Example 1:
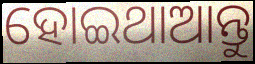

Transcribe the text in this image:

ହୋଇଥାଆନ୍ତୁ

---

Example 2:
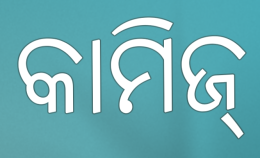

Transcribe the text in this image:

କାମିଜ୍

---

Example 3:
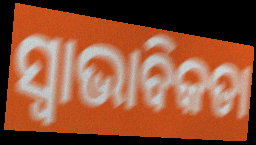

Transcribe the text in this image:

ସ୍ବାଭାବିକତା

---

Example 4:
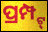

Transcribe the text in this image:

ପ୍ରମ୍ପ୍ଟ୍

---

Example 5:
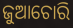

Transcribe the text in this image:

ଜୁଆଚୋରି